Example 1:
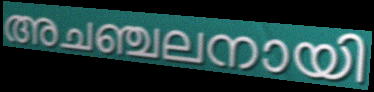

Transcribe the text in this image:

അചഞ്ചലനായി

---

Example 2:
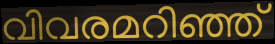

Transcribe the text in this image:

വിവരമറിഞ്ഞ്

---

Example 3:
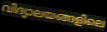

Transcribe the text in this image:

വിദ്യാലയങ്ങളിലെ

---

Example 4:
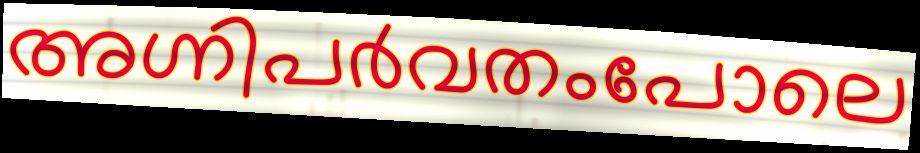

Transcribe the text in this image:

അഗ്നിപർവതംപോലെ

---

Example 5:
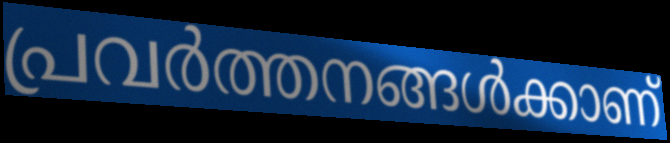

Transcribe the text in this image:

പ്രവർത്തനങ്ങൾക്കാണ്